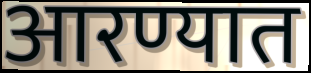
आरण्यात